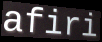
afiri